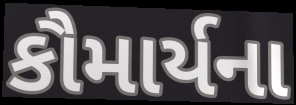
કૌમાર્યના